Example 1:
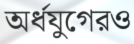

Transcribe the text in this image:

অর্ধযুগেরও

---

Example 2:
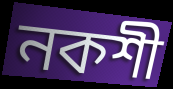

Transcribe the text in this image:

নকশী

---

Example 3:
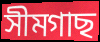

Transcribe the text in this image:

সীমগাছ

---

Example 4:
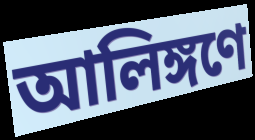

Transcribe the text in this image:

আলিঙ্গণে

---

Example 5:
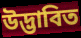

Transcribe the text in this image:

উদ্ভাবিত